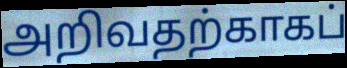
அறிவதற்காகப்